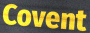
Covent